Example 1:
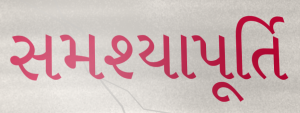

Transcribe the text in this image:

સમશ્યાપૂર્તિ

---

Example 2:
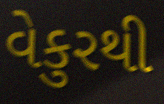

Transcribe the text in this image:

વેકુરથી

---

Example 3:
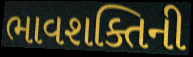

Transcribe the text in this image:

ભાવશક્તિની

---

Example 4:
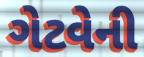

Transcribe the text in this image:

ગેટવેની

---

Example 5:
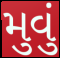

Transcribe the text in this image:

મુવું